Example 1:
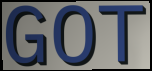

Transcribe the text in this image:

GOT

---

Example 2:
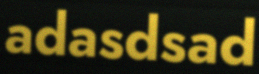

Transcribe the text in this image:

adasdsad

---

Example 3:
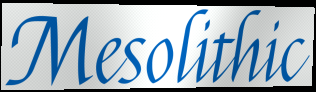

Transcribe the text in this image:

Mesolithic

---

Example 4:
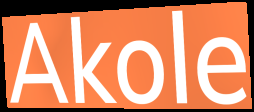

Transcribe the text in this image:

Akole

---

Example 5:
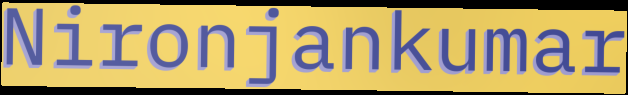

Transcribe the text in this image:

Nironjankumar